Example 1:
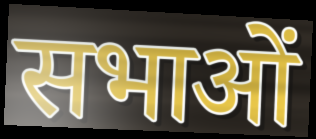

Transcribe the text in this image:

सभाओं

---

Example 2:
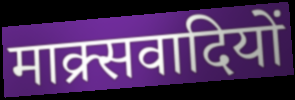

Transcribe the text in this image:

माक्र्सवादियों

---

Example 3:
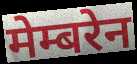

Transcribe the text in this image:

मेम्बरेन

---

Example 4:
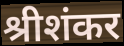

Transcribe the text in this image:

श्रीशंकर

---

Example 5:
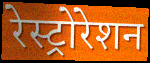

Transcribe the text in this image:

रेस्ट्रोरेशन